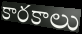
కారకాలు